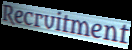
Recruitment